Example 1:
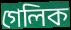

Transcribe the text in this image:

গেলিক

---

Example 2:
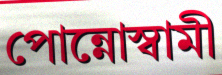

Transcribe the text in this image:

পোন্নোস্বামী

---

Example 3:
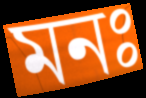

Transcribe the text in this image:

মনঃ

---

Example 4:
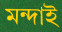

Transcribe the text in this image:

মন্দাই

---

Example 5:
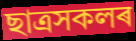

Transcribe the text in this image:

ছাত্ৰসকলৰ